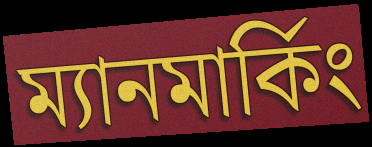
ম্যানমার্কিং